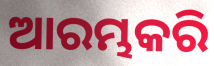
ଆରମ୍ଭକରି